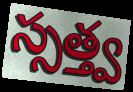
స్సత్త్వ